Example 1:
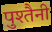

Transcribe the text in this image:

पुश्तैनी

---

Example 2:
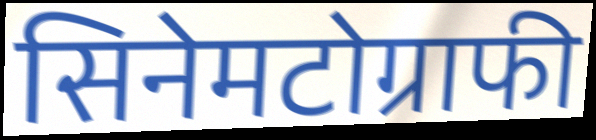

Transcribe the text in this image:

सिनेमटोग्राफी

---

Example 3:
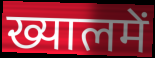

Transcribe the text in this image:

ख्यालमें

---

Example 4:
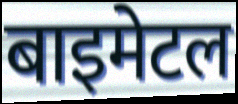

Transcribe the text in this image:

बाइमेटल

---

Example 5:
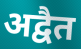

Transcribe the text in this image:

अद्वैत